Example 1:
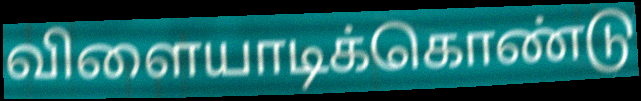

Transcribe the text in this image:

விளையாடிக்கொண்டு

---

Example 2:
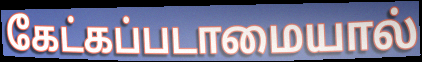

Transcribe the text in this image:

கேட்கப்படாமையால்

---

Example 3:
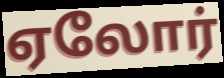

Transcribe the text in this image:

ஏலோர்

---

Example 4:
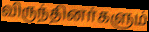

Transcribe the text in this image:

விருந்தினர்களும்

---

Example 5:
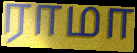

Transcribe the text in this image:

ராமா